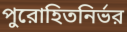
পুরোহিতনির্ভর